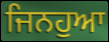
ਜਿਨਹੁਆ